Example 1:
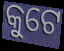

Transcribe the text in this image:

କୁଟେ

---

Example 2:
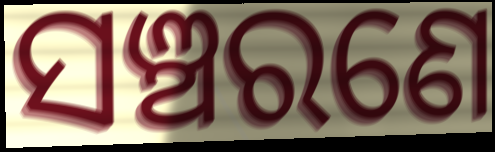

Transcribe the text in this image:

ସଞ୍ଚରଣେ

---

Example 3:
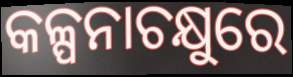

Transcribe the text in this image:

କଳ୍ପନାଚକ୍ଷୁରେ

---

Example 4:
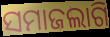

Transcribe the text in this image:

ସମାଜଲାଗି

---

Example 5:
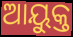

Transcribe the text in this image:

ଆୟୁକ୍ତ